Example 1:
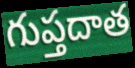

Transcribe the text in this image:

గుప్తదాత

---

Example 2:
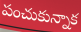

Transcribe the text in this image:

పంచుకున్నాక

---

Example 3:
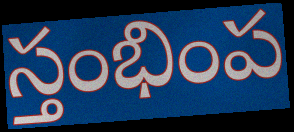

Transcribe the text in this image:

స్తంభింప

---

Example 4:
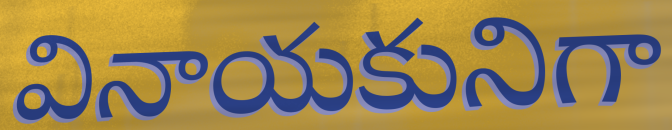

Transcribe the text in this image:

వినాయకునిగా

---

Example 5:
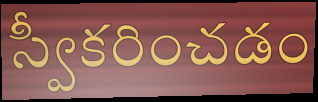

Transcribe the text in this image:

స్వీకరించడం